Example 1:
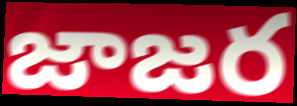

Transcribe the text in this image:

జాజర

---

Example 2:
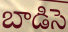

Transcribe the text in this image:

బాడిసె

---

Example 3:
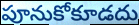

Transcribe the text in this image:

పూనుకోకూడదు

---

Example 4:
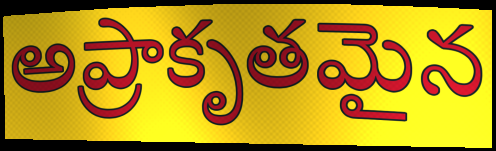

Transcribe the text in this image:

అప్రాకృతమైన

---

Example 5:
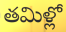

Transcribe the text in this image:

తమిళ్లో